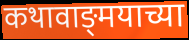
कथावाङ्मयाच्या